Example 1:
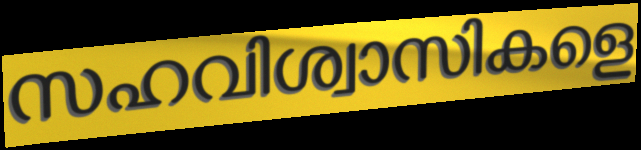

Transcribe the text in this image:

സഹവിശ്വാസികളെ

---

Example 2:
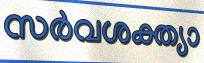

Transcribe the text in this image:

സർവശക്ത്യാ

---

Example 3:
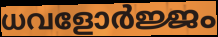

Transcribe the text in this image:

ധവളോർജ്ജം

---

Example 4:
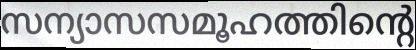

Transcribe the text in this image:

സന്യാസസമൂഹത്തിന്റെ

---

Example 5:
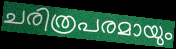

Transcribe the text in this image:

ചരിത്രപരമായും